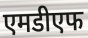
एमडीएफ